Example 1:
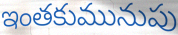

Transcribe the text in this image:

ఇంతకుమునుపు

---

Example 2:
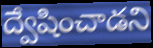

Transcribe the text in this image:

ద్వేషించాడని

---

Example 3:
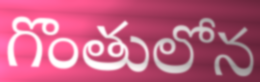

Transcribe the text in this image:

గొంతులోన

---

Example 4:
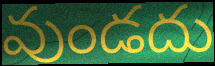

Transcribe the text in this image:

వుండదు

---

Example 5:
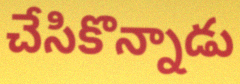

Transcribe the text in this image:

చేసికొన్నాడు